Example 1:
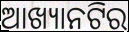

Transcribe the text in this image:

ଆଖ୍ୟାନଟିର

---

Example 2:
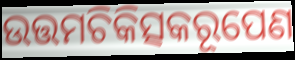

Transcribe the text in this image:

ଉତ୍ତମଚିକିତ୍ସକରୂପେଣ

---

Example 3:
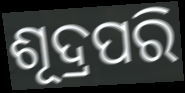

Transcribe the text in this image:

ଶୂଦ୍ରପରି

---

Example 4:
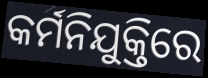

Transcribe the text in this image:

କର୍ମନିଯୁକ୍ତିରେ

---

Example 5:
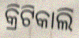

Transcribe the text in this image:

କ୍ରିଟିକାଲି